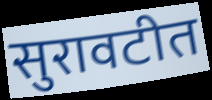
सुरावटीत